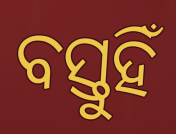
ବସ୍ତୁହିଁ